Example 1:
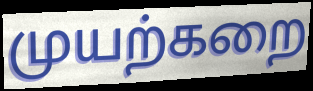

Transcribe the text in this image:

முயற்கறை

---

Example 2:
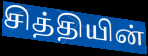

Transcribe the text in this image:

சித்தியின்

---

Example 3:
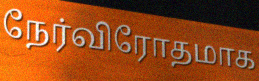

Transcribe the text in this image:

நேர்விரோதமாக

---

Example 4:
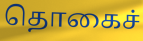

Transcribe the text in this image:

தொகைச்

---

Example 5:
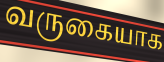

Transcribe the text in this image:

வருகையாக